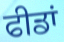
ਫੀਡਾਂ